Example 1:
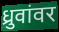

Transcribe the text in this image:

ध्रुवांवर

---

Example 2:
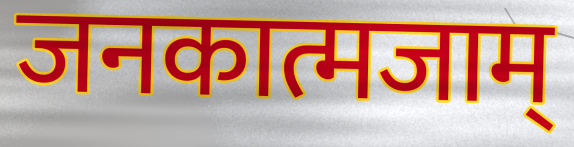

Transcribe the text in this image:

जनकात्मजाम्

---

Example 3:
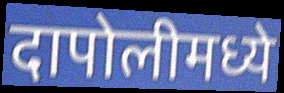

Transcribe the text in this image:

दापोलीमध्ये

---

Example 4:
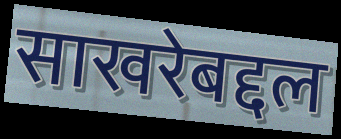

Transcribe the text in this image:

साखरेबद्दल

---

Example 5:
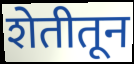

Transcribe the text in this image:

शेतीतून